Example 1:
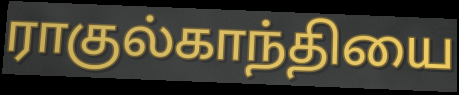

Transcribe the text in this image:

ராகுல்காந்தியை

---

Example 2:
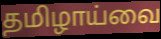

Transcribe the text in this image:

தமிழாய்வை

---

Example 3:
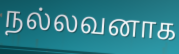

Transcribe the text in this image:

நல்லவனாக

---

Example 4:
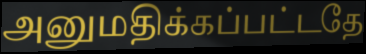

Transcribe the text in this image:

அனுமதிக்கப்பட்டதே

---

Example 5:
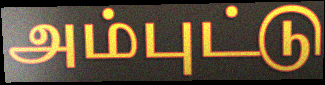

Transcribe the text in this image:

அம்புட்டு